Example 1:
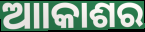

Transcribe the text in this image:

ଆାକାଶର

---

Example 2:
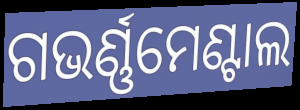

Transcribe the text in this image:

ଗଭର୍ଣ୍ଣମେଣ୍ଟାଲ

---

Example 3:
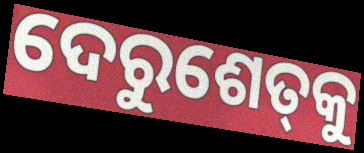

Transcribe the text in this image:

ଦେରୁଶେତ୍‌କୁ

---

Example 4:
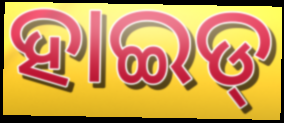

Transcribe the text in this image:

ହାଇଡ୍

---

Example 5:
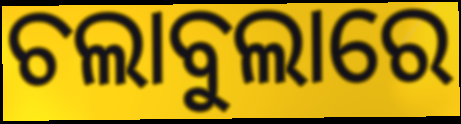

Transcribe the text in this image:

ଚଲାବୁଲାରେ